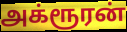
அக்ரூரன்